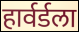
हार्वर्डला